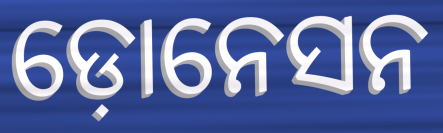
ଡ଼ୋନେସନ